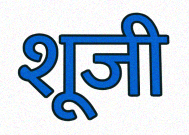
शूजी